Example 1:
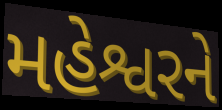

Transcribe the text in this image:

મહેશ્વરને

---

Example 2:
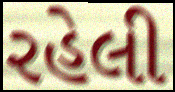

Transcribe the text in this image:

રહેલી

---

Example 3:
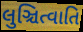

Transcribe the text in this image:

લુઞ્ચિત્વાતિ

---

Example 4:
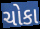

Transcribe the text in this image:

ચોકા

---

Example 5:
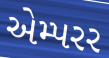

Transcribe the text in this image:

એમ્પરર